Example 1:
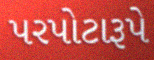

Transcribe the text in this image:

પરપોટારૂપે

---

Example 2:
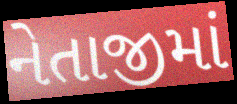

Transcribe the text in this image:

નેતાજીમાં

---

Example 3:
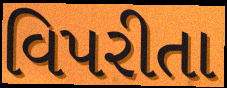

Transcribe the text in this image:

વિપરીતા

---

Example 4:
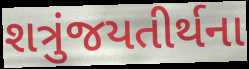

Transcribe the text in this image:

શત્રુંજયતીર્થના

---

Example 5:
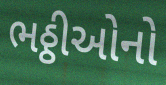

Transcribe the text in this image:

ભઠ્ઠીઓનો